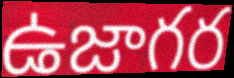
ఉజాగర